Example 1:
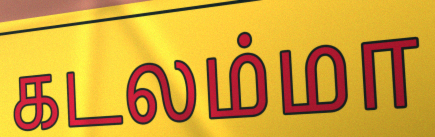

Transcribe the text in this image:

கடலம்மா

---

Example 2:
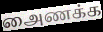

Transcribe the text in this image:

அைணக்க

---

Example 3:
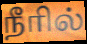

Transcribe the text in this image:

நீரில்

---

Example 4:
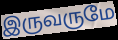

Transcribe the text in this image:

இருவருமே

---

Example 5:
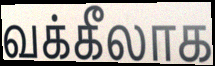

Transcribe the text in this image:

வக்கீலாக